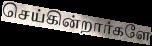
செய்கின்றார்களே